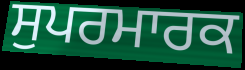
ਸੁਪਰਮਾਰਕ